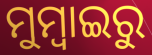
ମୁମ୍ବାଇରୁ